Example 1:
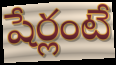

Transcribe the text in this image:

షేర్లంటే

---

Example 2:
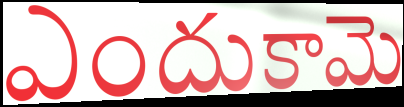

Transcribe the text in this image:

ఎందుకామె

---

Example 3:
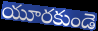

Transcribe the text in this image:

యూరకుండె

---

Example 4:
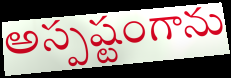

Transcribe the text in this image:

అస్పష్టంగాను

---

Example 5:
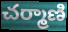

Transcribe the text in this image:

చర్మాణి